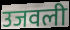
उजवली